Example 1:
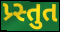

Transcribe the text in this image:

પ્ર્સ્તુત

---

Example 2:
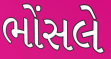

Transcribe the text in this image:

ભોંસલે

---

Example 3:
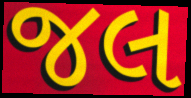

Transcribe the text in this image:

જલ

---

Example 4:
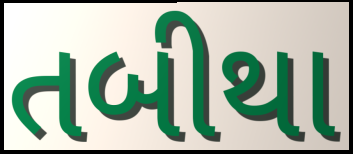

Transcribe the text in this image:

તબીથા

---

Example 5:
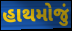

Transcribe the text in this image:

હાથમોજું